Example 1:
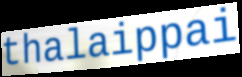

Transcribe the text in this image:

thalaippai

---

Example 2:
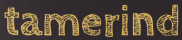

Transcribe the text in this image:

tamerind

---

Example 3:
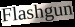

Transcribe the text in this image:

Flashgun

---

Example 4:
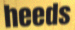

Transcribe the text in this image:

heeds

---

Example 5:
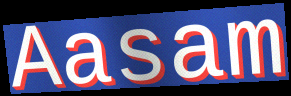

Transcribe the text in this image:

Aasam